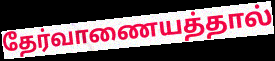
தேர்வாணையத்தால்